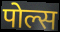
पोल्‍स